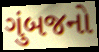
ગુંબજનો